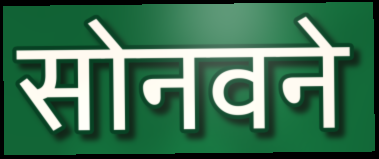
सोनवने